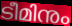
ടീമിനും